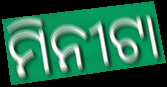
ମିନୀଟା